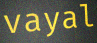
vayal